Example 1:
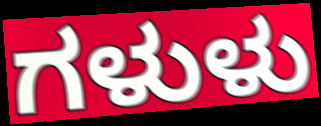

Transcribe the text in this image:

ಗಳುಳು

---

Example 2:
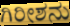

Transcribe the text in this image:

ಗಿರೀಶನು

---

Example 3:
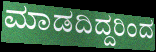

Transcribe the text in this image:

ಮಾಡದಿದ್ದರಿಂದ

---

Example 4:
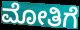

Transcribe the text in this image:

ಮೋತಿಗೆ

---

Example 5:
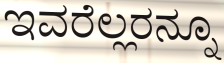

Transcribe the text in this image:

ಇವರೆಲ್ಲರನ್ನೂ